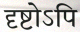
दृष्टोऽपि